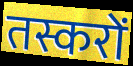
तस्करों